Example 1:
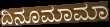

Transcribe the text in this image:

ದಿನೂಮಾಮಾ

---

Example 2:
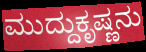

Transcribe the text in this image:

ಮುದ್ದುಕೃಷ್ಣನು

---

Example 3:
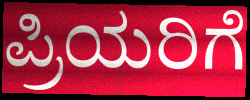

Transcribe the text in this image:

ಪ್ರಿಯರಿಗೆ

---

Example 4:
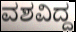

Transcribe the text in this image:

ವಶವಿದ್ದ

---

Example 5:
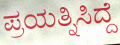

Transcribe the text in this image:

ಪ್ರಯತ್ನಿಸಿದ್ದೆ